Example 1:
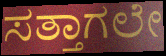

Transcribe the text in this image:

ಸತ್ತಾಗಲೇ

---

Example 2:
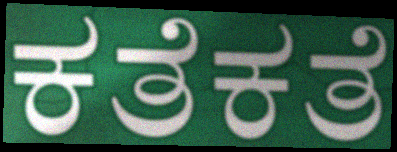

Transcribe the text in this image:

ಕತೆಕತೆ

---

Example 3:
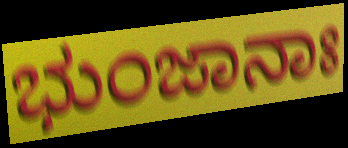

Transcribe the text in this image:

ಭುಂಜಾನಾಃ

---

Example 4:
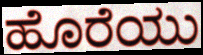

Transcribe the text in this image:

ಹೊರೆಯು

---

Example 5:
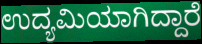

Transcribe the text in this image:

ಉದ್ಯಮಿಯಾಗಿದ್ದಾರೆ